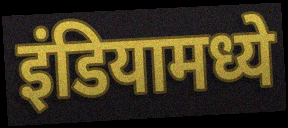
इंडियामध्ये